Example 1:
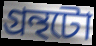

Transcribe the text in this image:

গ্ৰন্থটো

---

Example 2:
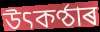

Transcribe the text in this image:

উৎকণ্ঠাৰ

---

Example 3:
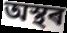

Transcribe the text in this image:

অস্থৰ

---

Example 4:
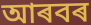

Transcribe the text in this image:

আৰবৰ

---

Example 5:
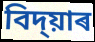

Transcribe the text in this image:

বিদ্য়াৰ